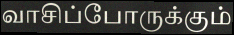
வாசிப்போருக்கும்